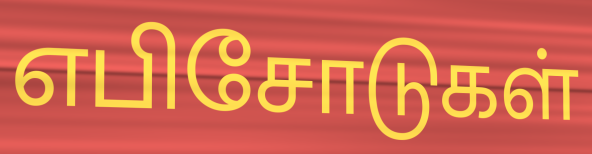
எபிசோடுகள்